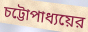
চট্টোপাধ্যয়ের